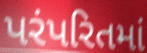
પરંપરિતમાં